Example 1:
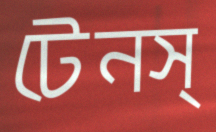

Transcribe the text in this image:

টেনস্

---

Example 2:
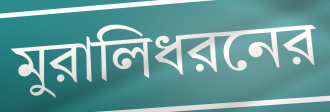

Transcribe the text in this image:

মুরালিধরনের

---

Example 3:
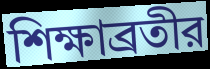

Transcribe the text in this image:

শিক্ষাব্রতীর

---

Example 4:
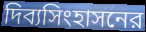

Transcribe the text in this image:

দিব্যসিংহাসনের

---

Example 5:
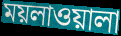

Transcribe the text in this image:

ময়লাওয়ালা